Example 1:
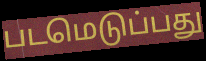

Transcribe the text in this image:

படமெடுப்பது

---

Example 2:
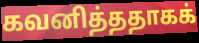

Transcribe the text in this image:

கவனித்ததாகக்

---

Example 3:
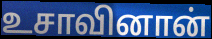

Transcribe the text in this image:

உசாவினான்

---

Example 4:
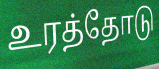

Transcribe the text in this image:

உரத்தோடு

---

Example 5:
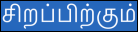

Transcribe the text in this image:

சிறப்பிற்கும்